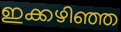
ഇക്കഴിഞ്ഞ